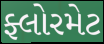
ફ્લોરમેટ